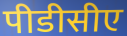
पीडीसीए